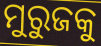
ମୁରୁଜକୁ